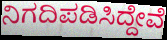
ನಿಗದಿಪಡಿಸಿದ್ದೇವೆ